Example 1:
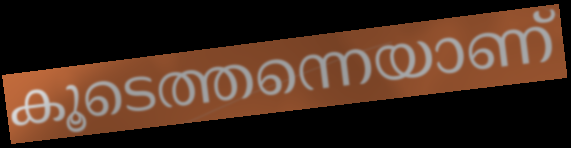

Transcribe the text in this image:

കൂടെത്തന്നെയാണ്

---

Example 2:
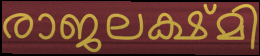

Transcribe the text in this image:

രാജലക്ഷ്മി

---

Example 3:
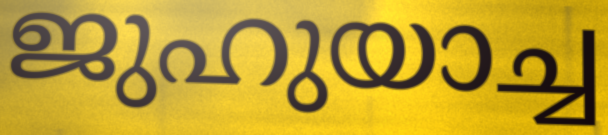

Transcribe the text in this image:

ജുഹുയാച്ച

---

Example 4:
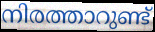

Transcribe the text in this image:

നിരത്താറുണ്ട്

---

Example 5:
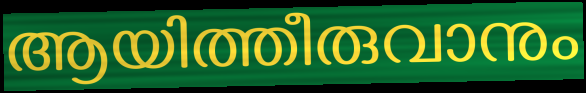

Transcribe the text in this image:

ആയിത്തീരുവാനും